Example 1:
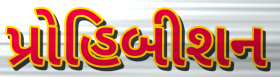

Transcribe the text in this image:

પ્રોહિબીશન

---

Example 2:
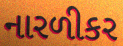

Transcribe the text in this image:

નારળીકર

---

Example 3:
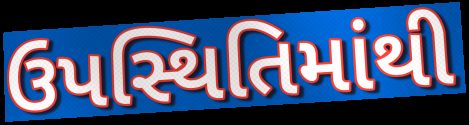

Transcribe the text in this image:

ઉપસ્થિતિમાંથી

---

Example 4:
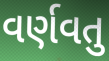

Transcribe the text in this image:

વર્ણવતુ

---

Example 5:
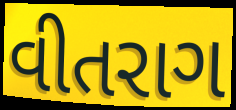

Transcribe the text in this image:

વીતરાગ